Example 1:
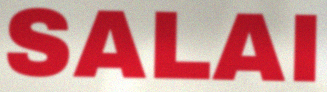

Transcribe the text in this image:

SALAI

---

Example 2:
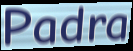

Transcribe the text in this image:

Padra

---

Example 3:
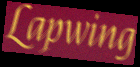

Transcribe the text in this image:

Lapwing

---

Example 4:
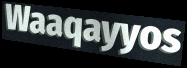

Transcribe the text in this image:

Waaqayyos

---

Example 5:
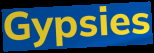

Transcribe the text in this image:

Gypsies